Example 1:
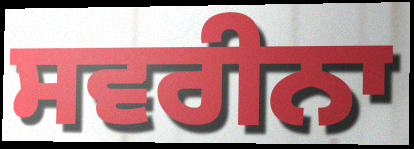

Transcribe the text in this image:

ਸਵਰੀਨਾ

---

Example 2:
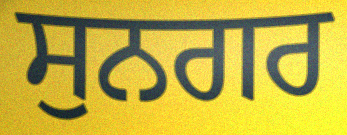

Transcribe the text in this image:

ਸੁਨਗਰ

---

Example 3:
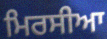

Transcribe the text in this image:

ਮਿਰਸੀਆ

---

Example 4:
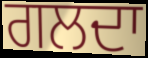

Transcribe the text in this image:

ਗਲਦਾ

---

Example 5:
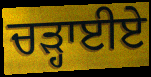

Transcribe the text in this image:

ਚੜ੍ਹਾਈਏ